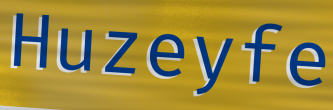
Huzeyfe